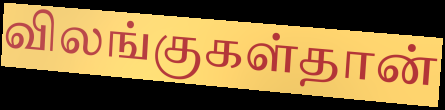
விலங்குகள்தான்